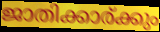
ജാതിക്കാര്ക്കും